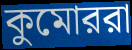
কুমোররা